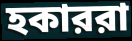
হকাররা